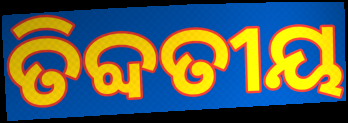
ତିବ୍ଦତୀୟ